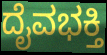
ದೈವಭಕ್ತಿ